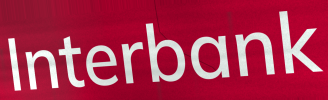
Interbank